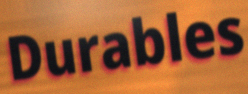
Durables